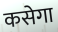
कसेगा